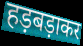
हड़बड़ाकर